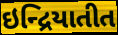
ઇન્દ્રિયાતીત